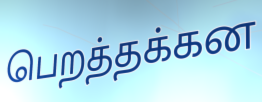
பெறத்தக்கன